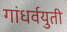
गांधर्वयुती